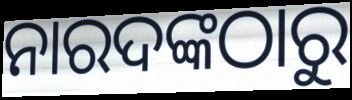
ନାରଦଙ୍କଠାରୁ